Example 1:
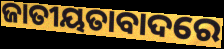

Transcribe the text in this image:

ଜାତୀୟତାବାଦରେ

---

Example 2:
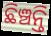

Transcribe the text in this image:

ଛିଞ୍ଚନ୍ତି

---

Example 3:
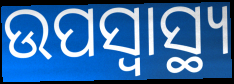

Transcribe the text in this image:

ଉପସ୍ୱାସ୍ଥ୍ୟ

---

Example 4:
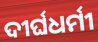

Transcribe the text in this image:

ଦୀର୍ଘଧର୍ମୀ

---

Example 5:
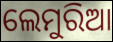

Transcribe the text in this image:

ଲେମୁରିଆ